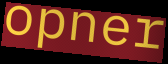
opner